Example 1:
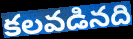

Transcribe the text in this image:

కలవడినది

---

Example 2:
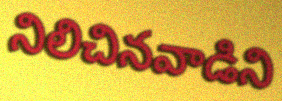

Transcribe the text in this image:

నిలిచినవాడిని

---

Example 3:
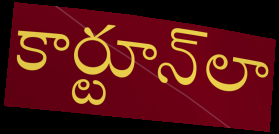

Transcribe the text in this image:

కార్టూన్‌లా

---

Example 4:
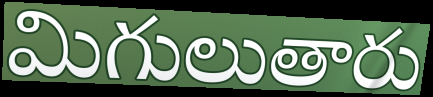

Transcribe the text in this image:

మిగులుతారు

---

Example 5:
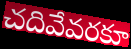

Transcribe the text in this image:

చదివేవరకూ